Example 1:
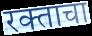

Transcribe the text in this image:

रक्‍ताचा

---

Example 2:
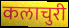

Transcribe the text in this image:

कलाचुरी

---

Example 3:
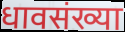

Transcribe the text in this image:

धावसंख्या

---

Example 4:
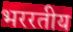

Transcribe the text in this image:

भररतीय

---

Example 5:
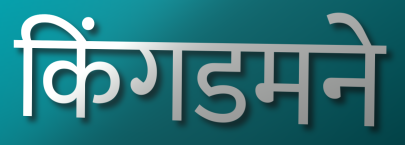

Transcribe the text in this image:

किंगडमने